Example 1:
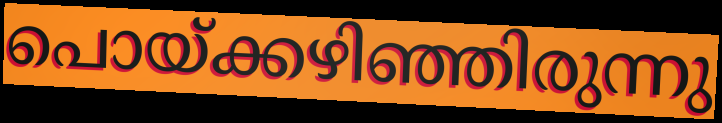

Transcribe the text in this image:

പൊയ്ക്കഴിഞ്ഞിരുന്നു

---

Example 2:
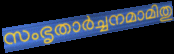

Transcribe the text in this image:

സംഭൃതാർച്ചനമാമിതു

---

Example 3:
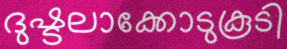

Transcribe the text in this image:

ദുഷ്ടലാക്കോടുകൂടി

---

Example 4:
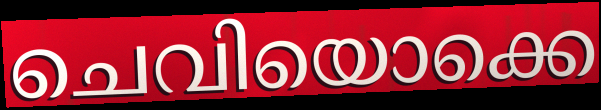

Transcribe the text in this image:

ചെവിയൊക്കെ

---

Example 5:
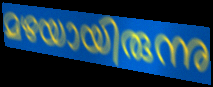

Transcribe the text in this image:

മഴയായിരുന്നു